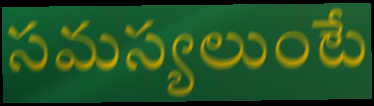
సమస్యలుంటే